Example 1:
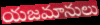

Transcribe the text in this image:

యజమానులు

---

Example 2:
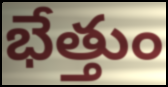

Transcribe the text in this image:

భేత్తుం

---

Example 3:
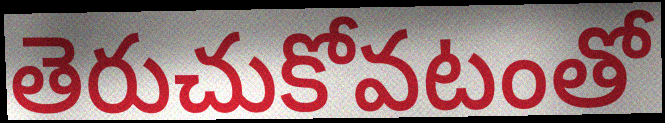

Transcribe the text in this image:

తెరుచుకోవటంతో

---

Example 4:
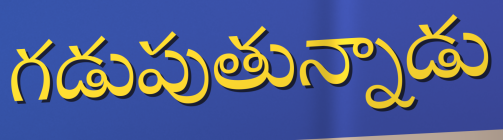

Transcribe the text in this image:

గడుపుతున్నాడు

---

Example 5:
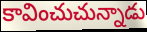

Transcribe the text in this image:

కావించుచున్నాడు